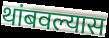
थांबवल्यास